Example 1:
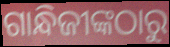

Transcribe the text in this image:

ଗାନ୍ଧିଜୀଙ୍କଠାରୁ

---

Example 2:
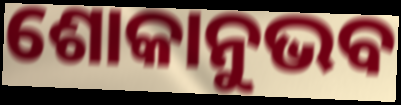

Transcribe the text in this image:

ଶୋକାନୁଭବ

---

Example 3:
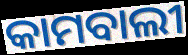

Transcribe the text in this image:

କାମବାଲୀ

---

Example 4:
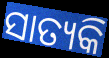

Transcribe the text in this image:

ସାତ୍ଯକି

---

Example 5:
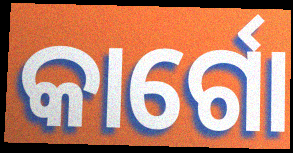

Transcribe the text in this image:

କାର୍ଗୋ